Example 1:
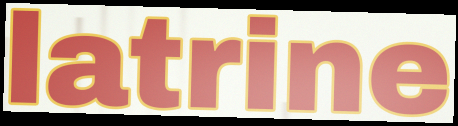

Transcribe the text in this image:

latrine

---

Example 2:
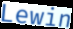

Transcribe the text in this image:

Lewin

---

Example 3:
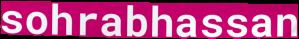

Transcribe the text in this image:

sohrabhassan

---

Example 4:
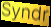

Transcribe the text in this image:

Syndr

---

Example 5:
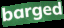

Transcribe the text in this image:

barged